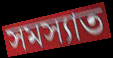
সমস্যাত